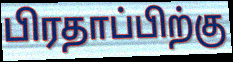
பிரதாப்பிற்கு